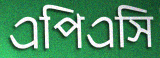
এপিএসি